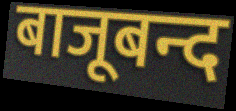
बाजूबन्द